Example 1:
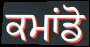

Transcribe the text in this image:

ਕਮਾਂਡੋ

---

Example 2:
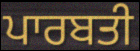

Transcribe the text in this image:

ਪਾਰਬਤੀ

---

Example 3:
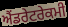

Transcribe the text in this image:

ਐਂਡਰੇਟਰੇਕਮੀ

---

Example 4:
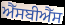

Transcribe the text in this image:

ਐੱਸਬੀਐੱਸ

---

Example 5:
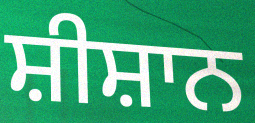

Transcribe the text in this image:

ਸ਼ੀਸ਼ਾਨ